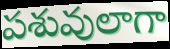
పశువులాగా